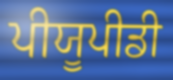
ਪੀਯੂਪੀਡੀ